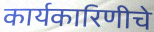
कार्यकारिणीचे